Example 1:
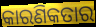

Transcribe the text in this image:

କାରଣିକତାର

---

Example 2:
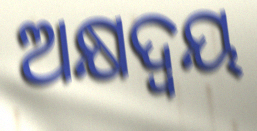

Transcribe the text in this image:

ଅକ୍ଷଦ୍ବୟ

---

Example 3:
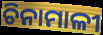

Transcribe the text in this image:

ଚିନାମାଳୀ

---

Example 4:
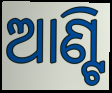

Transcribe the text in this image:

ଆଣ୍ଟି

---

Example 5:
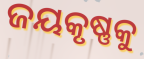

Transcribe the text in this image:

ଜୟକୃଷ୍ଣକୁ